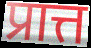
प्रात्त